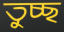
তুচ্ছ